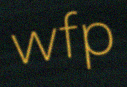
wfp